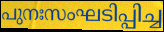
പുനഃസംഘടിപ്പിച്ച